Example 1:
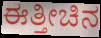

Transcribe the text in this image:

ಈತ್ತೀಚಿನ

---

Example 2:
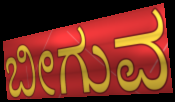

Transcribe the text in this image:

ಬೀಗುವ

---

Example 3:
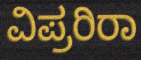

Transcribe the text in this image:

ವಿಪ್ರರಿರಾ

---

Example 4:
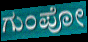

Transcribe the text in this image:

ಗುಂಪೋ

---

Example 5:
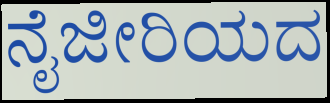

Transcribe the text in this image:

ನೈಜೀರಿಯದ